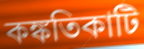
কঙ্কতিকাটি